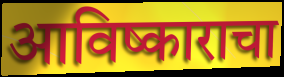
आविष्काराचा